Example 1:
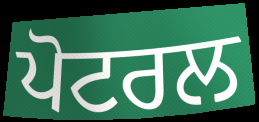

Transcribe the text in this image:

ਪੋਟਰਲ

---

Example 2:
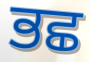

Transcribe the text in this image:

ਭਛ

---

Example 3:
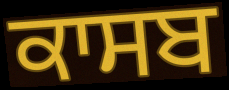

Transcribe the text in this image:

ਕਾਸਬ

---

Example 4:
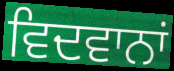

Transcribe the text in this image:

ਵਿਦਵਾਨਾਂ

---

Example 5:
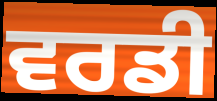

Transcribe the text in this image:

ਵਰਡੀ